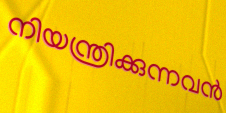
നിയന്ത്രിക്കുന്നവൻ